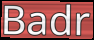
Badr